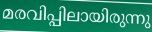
മരവിപ്പിലായിരുന്നു